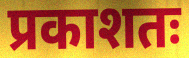
प्रकाशतः